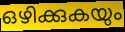
ഒഴിക്കുകയും